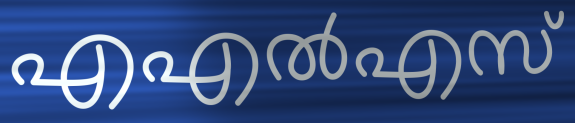
എഎൽഎസ്